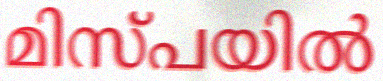
മിസ്പയിൽ